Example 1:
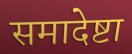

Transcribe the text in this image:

समादेष्टा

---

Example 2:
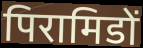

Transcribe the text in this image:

पिरामिडों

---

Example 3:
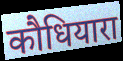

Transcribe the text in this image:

कौधियारा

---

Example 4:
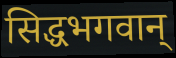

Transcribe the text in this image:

सिद्धभगवान्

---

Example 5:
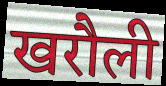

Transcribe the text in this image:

खरौली